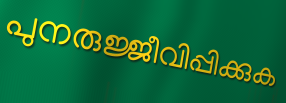
പുനരുജ്ജീവിപ്പിക്കുക